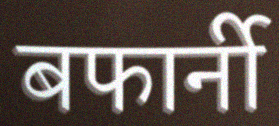
बफार्नी